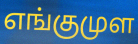
எங்குமுள